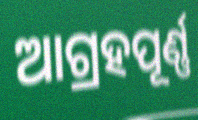
ଆଗ୍ରହପୂର୍ଣ୍ଣ